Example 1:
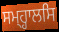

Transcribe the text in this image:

ਸਮ੍ਹ੍ਹਾਲਸਿ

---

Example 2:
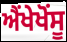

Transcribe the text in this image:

ਐਂਖੇਖੋਂਸੂ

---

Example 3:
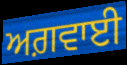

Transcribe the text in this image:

ਅਗ਼ਵਾਈ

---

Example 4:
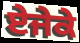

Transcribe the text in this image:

ਏਜੇਕੇ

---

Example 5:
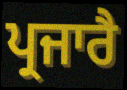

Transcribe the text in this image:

ਪ੍ਰਜਾਰੈ